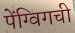
पेंग्विगची